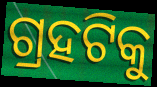
ଗ୍ରହଟିକୁ